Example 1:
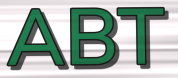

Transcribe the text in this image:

ABT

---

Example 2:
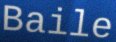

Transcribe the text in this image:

Baile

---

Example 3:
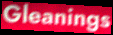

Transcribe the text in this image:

Gleanings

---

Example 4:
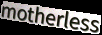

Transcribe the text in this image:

motherless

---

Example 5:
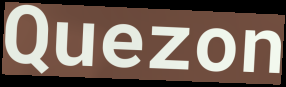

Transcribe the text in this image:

Quezon